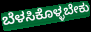
ಬೆಳಸಿಕೊಳ್ಳಬೇಕು